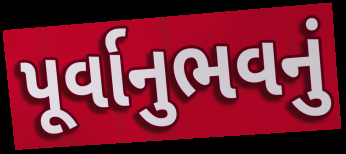
પૂર્વાનુભવનું